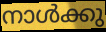
നാൾക്കു